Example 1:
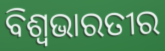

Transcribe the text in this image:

ବିଶ୍ୱଭାରତୀର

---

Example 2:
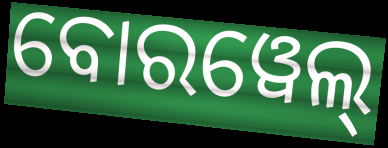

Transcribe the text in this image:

ବୋରୱେଲ୍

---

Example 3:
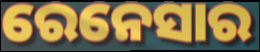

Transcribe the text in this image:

ରେନେସାର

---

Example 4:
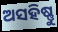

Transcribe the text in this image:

ଅସହିଷ୍ଣୁ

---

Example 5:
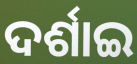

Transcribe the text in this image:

ଦର୍ଶାଇ